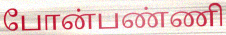
போன்பண்ணி